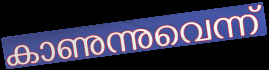
കാണുന്നുവെന്ന്